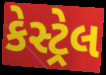
કેસ્ટ્રેલ